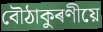
বৌঠাকুৰণীয়ে